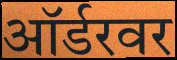
ऑर्डरवर